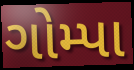
ગોમ્પા